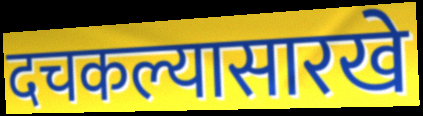
दचकल्यासारखे